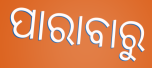
ପାରାବାରୁ